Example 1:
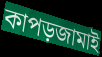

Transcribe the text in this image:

কাপড়জামাই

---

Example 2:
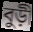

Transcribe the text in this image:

বুড়ী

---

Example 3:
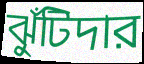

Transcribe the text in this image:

ঝুঁটিদার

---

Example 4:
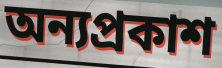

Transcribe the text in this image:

অন্যপ্রকাশ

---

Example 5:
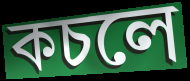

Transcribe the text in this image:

কচলে